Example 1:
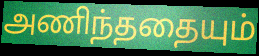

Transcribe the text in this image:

அணிந்ததையும்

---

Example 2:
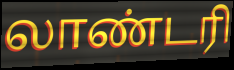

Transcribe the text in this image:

லாண்டரி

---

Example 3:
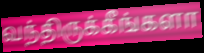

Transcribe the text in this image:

வந்திருக்கீங்களா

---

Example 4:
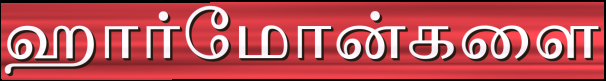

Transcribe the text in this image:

ஹார்மோன்களை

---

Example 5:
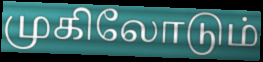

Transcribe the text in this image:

முகிலோடும்